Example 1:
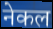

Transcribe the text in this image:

नेकल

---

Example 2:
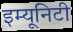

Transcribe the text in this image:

इम्‍यूनिटी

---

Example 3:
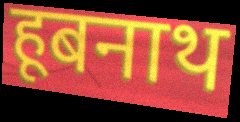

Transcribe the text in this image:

हूबनाथ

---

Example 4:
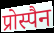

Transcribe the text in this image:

प्रोस्पैन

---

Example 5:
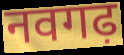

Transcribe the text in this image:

नवगढ़